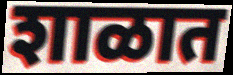
शाळात